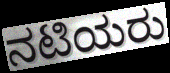
ನಟಿಯರು